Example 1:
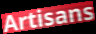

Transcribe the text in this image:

Artisans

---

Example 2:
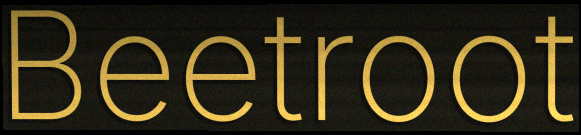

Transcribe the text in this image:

Beetroot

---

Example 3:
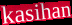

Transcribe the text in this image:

kasihan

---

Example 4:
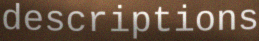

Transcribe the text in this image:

descriptions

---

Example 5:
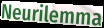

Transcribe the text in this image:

Neurilemma